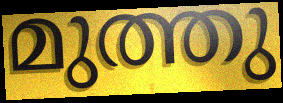
മുത്തു